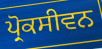
ਪ੍ਰੋਕਸੀਵਨ